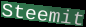
Steemit